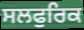
ਸਲਫੁਰਿਕ